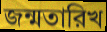
জন্মতারিখ